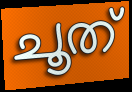
ചൂത്